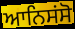
ਆਨਿਸਂਸੋ